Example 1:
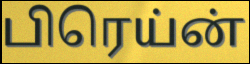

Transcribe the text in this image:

பிரெய்ன்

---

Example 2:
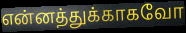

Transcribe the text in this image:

என்னத்துக்காகவோ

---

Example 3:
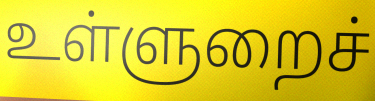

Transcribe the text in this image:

உள்ளுறைச்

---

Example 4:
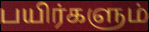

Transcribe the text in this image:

பயிர்களும்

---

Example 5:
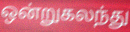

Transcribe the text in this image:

ஒன்றுகலந்து